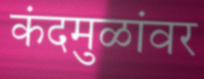
कंदमुळांवर